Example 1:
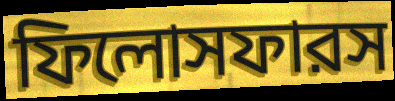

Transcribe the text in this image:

ফিলোসফারস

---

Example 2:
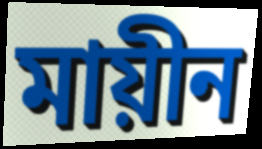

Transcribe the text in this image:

মায়ীন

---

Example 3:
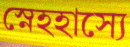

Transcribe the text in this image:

স্নেহহাস্যে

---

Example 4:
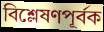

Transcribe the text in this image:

বিশ্লেষণপূর্বক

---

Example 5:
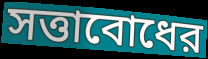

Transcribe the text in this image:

সত্তাবোধের